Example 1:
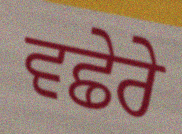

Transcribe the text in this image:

ਵਛੇਰੇ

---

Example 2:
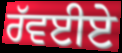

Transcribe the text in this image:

ਰੱਵਈਏ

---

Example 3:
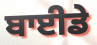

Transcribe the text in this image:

ਬਾਈਡੇ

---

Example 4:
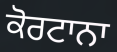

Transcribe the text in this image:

ਕੋਰਟਾਨਾ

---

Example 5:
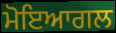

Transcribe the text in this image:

ਮੋਇਆਗਲ